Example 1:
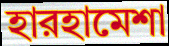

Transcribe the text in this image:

হারহামেশা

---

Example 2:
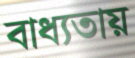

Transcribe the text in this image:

বাধ্যতায়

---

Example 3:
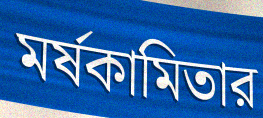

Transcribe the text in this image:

মর্ষকামিতার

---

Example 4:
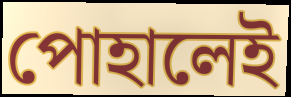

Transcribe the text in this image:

পোহালেই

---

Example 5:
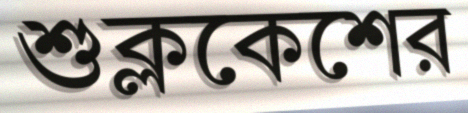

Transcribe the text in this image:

শুক্লকেশের